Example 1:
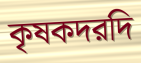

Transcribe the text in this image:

কৃষকদরদি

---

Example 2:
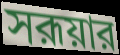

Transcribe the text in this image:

সরূয়ার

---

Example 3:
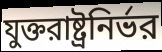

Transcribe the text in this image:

যুক্তরাষ্ট্রনির্ভর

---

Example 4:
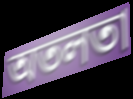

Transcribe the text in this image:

অতলতা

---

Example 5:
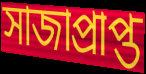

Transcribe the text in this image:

সাজাপ্রাপ্ত